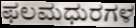
ಫಲಮಧುರಗಳ